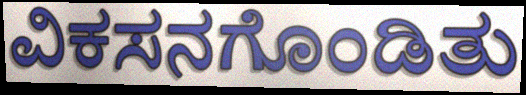
ವಿಕಸನಗೊಂಡಿತು